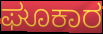
ಘೂಕಾರ